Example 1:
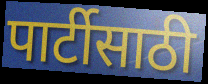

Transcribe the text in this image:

पार्टीसाठी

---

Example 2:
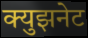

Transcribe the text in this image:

क्युझनेट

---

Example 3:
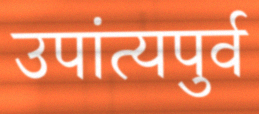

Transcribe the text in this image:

उपांत्यपुर्व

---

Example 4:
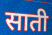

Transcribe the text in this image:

साती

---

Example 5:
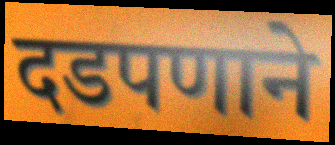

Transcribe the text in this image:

दडपणाने